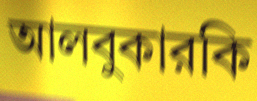
আলবুকারকি